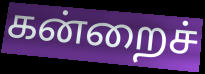
கன்றைச்